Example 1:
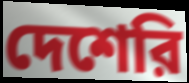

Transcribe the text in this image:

দেশেরি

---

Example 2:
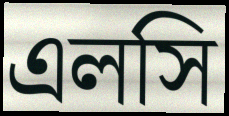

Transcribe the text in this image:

এলসি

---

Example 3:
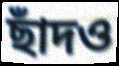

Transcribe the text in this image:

ছাঁদও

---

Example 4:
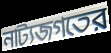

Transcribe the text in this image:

নাট্যজগতের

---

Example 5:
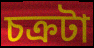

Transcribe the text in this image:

চক্রটা